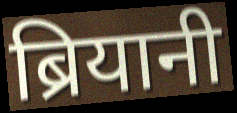
ब्रियानी